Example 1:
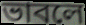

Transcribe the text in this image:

ভাবলে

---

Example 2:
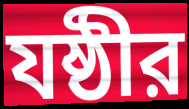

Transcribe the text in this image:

যষ্ঠীর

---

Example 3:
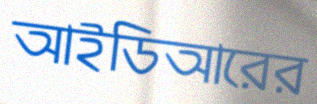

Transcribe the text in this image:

আইডিআরের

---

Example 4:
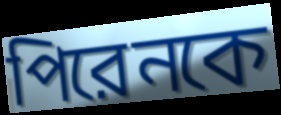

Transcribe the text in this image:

পিরেনকে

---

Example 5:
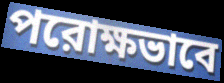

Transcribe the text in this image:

পরোক্ষভাবে